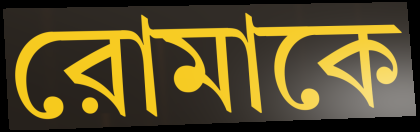
রোমাকে